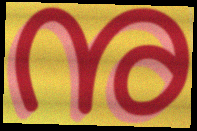
നു